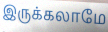
இருக்கலாமே